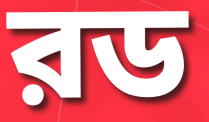
রড